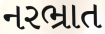
નરભ્રાત